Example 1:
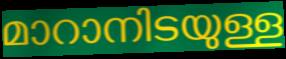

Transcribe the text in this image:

മാറാനിടയുള്ള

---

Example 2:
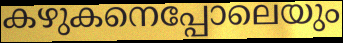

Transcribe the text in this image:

കഴുകനെപ്പോലെയും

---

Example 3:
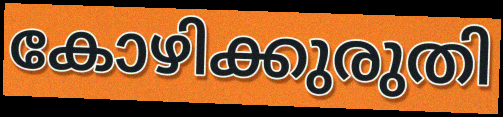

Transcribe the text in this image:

കോഴിക്കുരുതി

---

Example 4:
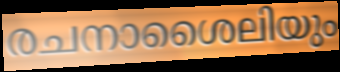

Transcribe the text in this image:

രചനാശൈലിയും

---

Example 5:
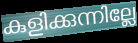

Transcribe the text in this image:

കുളിക്കുന്നില്ലേ